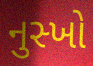
નુસ્ખો